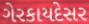
ગેરકાયદેસર